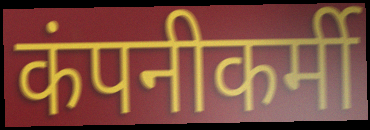
कंपनीकर्मी